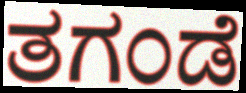
ತಗಂಡೆ